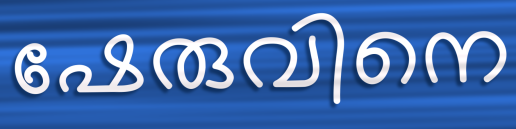
ഷേരുവിനെ